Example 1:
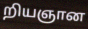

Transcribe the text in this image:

றியஞான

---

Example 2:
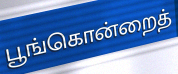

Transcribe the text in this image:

பூங்கொன்றைத்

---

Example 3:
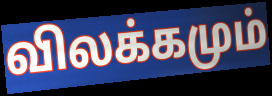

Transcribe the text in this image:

விலக்கமும்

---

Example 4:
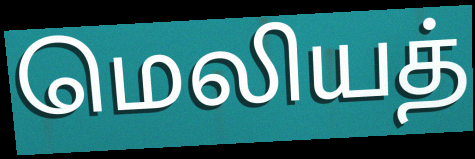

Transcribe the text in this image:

மெலியத்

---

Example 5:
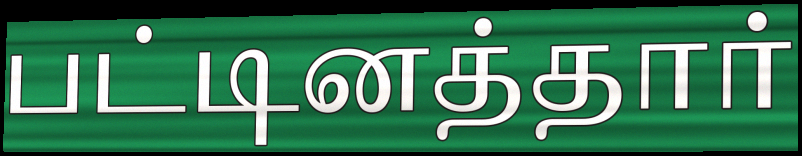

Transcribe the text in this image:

பட்டினத்தார்